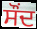
ਸੌਂਦ